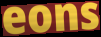
eons